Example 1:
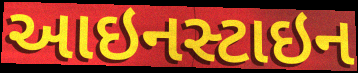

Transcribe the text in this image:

આઇનસ્ટાઇન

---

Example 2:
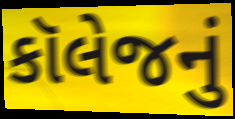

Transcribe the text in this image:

કૉલેજનું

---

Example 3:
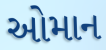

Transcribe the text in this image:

ઓમાન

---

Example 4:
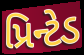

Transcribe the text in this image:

પ્રિન્ટેડ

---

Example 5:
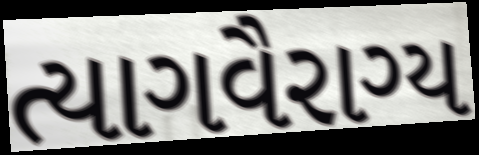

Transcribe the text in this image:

ત્યાગવૈરાગ્ય